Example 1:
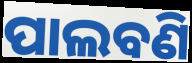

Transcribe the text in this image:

ପାଲବଣି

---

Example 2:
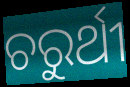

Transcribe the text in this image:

ଚରୁର୍ଥୀ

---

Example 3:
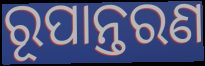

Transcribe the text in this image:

ରୂପାନ୍ତରଣ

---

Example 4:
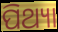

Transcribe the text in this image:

ପିଥ୍ୟା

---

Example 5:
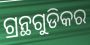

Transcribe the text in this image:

ଗ୍ରନ୍ଥଗୁଡିକର